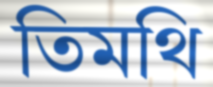
তিমথি